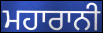
ਮਹਾਰਾਨੀ